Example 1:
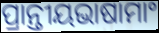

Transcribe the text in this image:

ପ୍ରାନ୍ତୀୟଭାଷାମାଂ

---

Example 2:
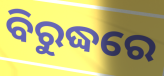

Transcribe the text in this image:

ବିରୁଦ୍ଧରେ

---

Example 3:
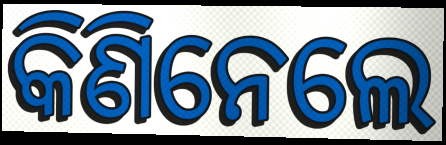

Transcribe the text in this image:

କିଣିନେଲେ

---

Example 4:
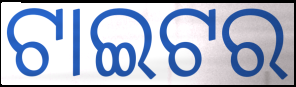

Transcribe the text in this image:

ଟାଇଟର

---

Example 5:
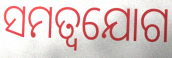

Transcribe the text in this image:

ସମତ୍ୱଯୋଗ